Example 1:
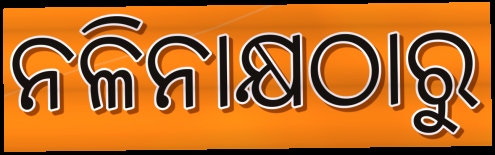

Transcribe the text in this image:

ନଳିନାକ୍ଷଠାରୁ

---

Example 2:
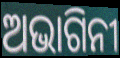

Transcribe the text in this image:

ଅଭାଗିନୀ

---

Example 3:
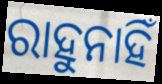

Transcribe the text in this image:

ରାହୁନାହିଁ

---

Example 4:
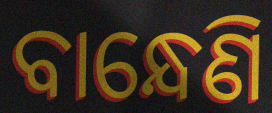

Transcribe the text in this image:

ବାନ୍ଧେଣି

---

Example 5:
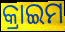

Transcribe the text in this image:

କ୍ରାଇମ